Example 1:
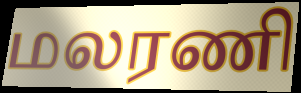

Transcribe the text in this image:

மலரணி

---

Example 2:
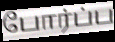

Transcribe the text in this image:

போர்ப்ப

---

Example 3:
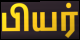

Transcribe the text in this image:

பியர்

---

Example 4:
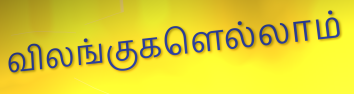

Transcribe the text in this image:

விலங்குகளெல்லாம்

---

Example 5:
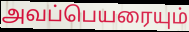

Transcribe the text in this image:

அவப்பெயரையும்